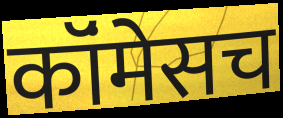
कॉंमेसच